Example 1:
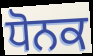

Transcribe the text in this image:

ਧੋਨਕ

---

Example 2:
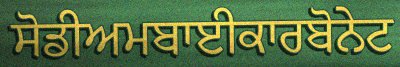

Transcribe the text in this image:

ਸੋਡੀਅਮਬਾਈਕਾਰਬੋਨੇਟ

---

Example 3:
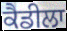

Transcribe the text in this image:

ਕੈਡੀਲਾ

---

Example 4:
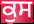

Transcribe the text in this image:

ਕੁਸ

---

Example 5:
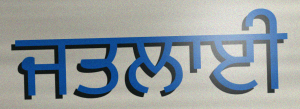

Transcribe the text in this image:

ਜਤਲਾਈ